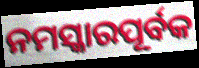
ନମସ୍କାରପୂର୍ବକ